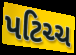
પટિચ્ચ